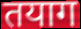
तयाग